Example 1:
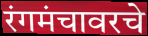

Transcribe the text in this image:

रंगमंचावरचे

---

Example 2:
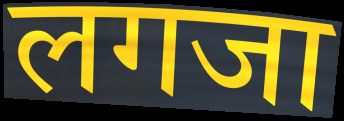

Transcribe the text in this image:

लगजा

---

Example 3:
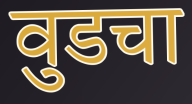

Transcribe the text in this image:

वुडचा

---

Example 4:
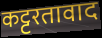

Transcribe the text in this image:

कट्टरतावाद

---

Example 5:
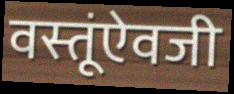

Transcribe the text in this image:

वस्तूंऐवजी